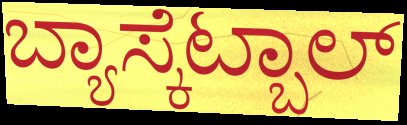
ಬ್ಯಾಸ್ಕೆಟ್ಬಾಲ್